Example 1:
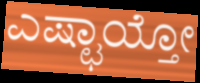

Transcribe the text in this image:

ಎಷ್ಟಾಯ್ತೋ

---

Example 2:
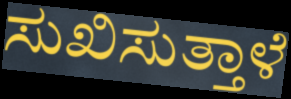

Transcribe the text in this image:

ಸುಖಿಸುತ್ತಾಳೆ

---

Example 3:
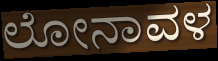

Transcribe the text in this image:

ಲೋನಾವಳ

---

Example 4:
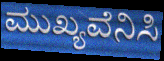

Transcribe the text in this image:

ಮುಖ್ಯವೆನಿಸಿ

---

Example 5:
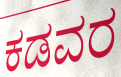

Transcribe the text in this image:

ಕಡವರ